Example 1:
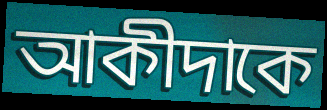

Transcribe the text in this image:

আকীদাকে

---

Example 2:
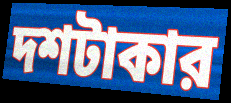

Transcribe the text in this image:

দশটাকার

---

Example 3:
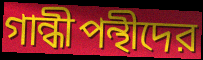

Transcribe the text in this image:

গান্ধীপন্থীদের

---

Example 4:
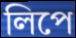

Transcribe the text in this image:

লিপে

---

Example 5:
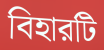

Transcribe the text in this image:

বিহারটি